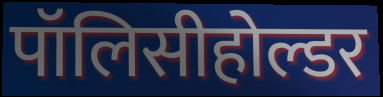
पॉलिसीहोल्डर